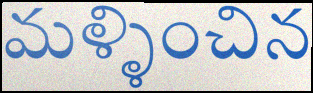
మళ్ళించిన